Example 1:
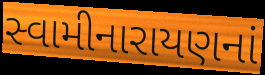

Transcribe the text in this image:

સ્વામીનારાયણનાં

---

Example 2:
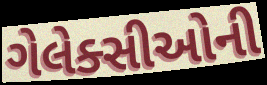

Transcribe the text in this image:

ગેલેક્સીઓની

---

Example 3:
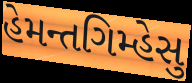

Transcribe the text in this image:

હેમન્તગિમ્હેસુ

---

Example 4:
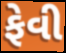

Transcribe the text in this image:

ફેવી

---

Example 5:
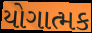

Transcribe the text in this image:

યોગાત્મક